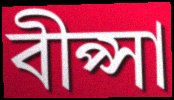
বীপ্সা